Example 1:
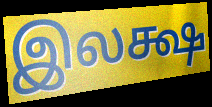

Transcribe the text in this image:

இலக்ஷ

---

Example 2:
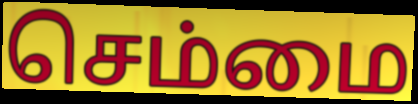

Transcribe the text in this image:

செம்மை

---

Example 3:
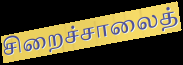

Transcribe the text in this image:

சிறைச்சாலைத்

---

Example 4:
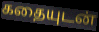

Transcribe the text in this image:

கதையுடன்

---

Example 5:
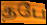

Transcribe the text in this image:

தபே